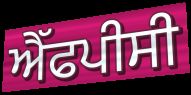
ਐੱਫਪੀਸੀ